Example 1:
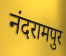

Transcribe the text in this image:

नंदरामपुर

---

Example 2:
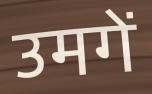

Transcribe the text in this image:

उमगें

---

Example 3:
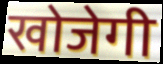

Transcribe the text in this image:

खोजेगी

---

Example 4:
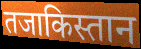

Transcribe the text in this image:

तजाकिस्‍तान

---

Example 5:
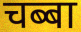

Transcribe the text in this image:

चब्बा